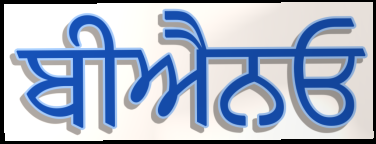
ਬੀਐਨਓ